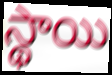
స్థాయి